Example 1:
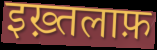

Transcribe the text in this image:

इख़्तलाफ़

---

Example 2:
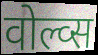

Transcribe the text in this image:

वोल्व्स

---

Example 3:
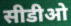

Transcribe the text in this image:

सीडीओ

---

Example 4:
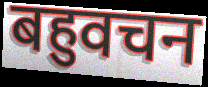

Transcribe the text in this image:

बहुवचन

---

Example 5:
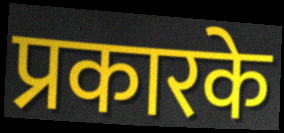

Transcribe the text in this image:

प्रकारके